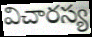
విచారస్య